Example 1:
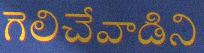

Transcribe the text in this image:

గెలిచేవాడిని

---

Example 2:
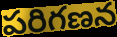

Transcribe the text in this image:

పరిగణన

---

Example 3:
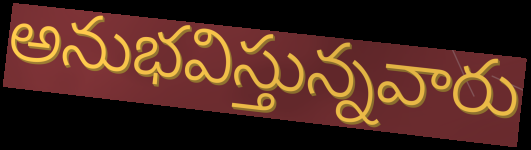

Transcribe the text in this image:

అనుభవిస్తున్నవారు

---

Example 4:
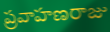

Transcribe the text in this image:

ప్రవాహణరాజు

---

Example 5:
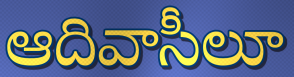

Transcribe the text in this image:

ఆదివాసీలూ